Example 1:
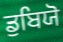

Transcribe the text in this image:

ਡੁਬਿਯੋ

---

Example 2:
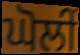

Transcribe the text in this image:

ਘੋਲੀਂ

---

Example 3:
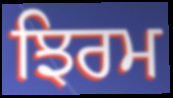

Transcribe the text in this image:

ਝਿਰਮ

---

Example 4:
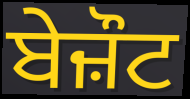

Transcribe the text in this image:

ਬੇਜ਼ੌਟ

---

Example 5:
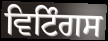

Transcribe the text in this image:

ਵਿਟਿੰਗਸ